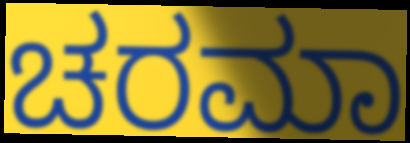
ಚರಮಾ